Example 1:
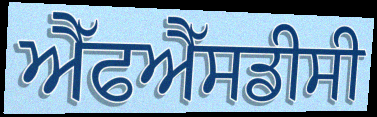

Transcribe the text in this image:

ਐੱਫਐੱਸਡੀਸੀ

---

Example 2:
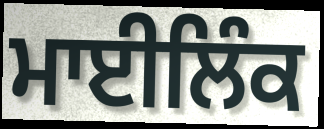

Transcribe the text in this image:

ਮਾਈਲਿੰਕ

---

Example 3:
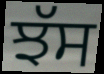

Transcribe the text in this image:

ਝੱਸ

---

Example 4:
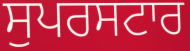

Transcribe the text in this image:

ਸੁਪਰਸਟਾਰ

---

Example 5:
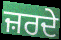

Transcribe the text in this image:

ਜ਼ਰਦੇ